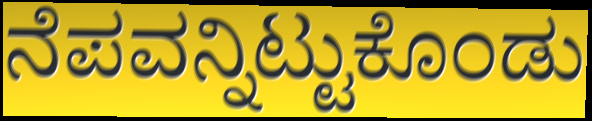
ನೆಪವನ್ನಿಟ್ಟುಕೊಂಡು